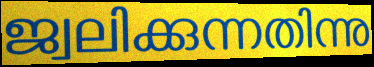
ജ്വലിക്കുന്നതിന്നു